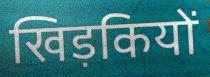
खिड़कियों